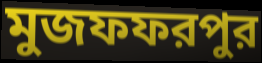
মুজফফরপুর